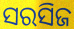
ସରସିଜ